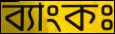
ব্যাংকঃ